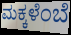
ಮಕ್ಕಳೆಂಬೆ